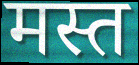
मस्त